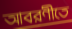
আবরণীতে